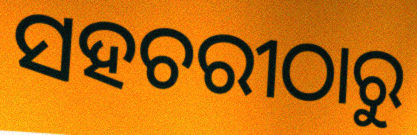
ସହଚରୀଠାରୁ